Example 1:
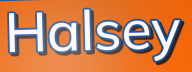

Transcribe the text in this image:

Halsey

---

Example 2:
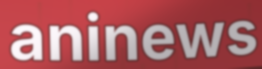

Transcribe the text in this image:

aninews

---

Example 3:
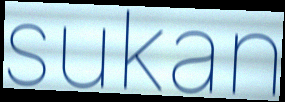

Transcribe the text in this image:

sukan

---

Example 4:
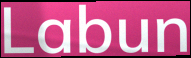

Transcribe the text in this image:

Labun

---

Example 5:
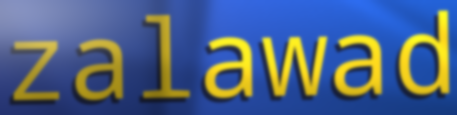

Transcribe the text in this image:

zalawad